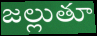
జల్లుతూ